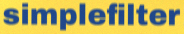
simplefilter